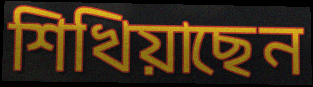
শিখিয়াছেন